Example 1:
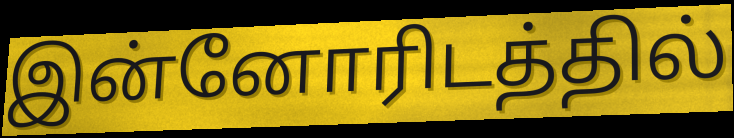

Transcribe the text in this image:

இன்னோரிடத்தில்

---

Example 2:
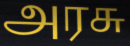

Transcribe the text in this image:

அரசு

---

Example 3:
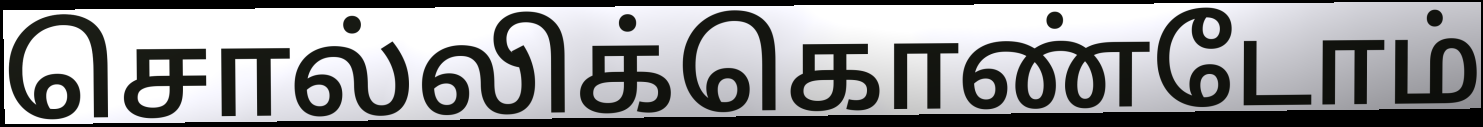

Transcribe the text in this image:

சொல்லிக்கொண்டோம்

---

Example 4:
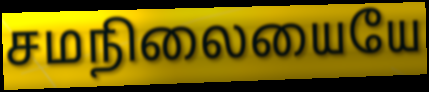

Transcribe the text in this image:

சமநிலையையே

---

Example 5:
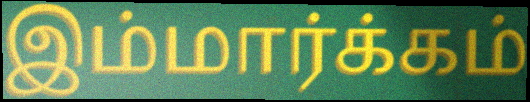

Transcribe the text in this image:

இம்மார்க்கம்